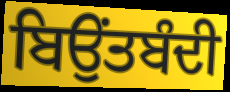
ਬਿਉਂਤਬੰਦੀ